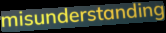
misunderstanding